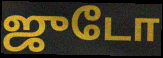
ஜுடோ